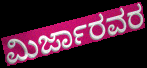
ಮಿರ್ಜಾರವರ